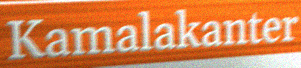
Kamalakanter